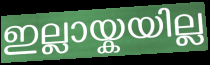
ഇല്ലായ്കയില്ല